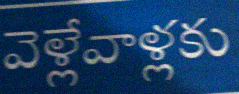
వెళ్లేవాళ్లకు